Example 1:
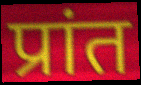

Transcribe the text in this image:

प्रांत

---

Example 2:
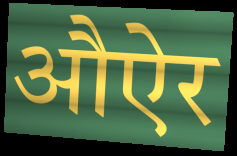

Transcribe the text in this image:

औऐर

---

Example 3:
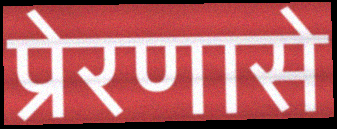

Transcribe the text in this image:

प्रेरणासे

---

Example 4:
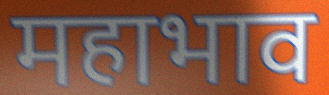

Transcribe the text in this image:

महाभाव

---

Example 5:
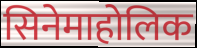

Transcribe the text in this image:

सिनेमाहोलिक